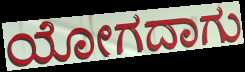
ಯೋಗದಾಗು